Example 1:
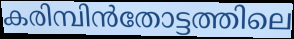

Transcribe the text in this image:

കരിമ്പിൻതോട്ടത്തിലെ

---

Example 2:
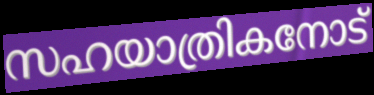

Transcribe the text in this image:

സഹയാത്രികനോട്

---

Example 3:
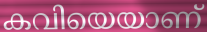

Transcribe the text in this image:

കവിയെയാണ്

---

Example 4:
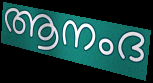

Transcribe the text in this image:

ആനംദ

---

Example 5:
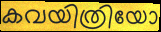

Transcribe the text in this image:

കവയിത്രിയോ